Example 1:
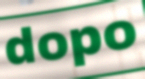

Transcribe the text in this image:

dopo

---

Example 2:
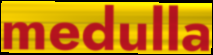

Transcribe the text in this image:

medulla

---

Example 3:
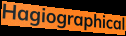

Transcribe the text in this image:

Hagiographical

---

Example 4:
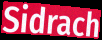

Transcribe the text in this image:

Sidrach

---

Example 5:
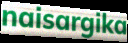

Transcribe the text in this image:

naisargika